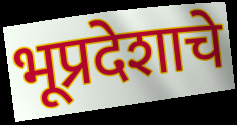
भूप्रदेशाचे